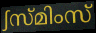
ഽസ്മിംസ്